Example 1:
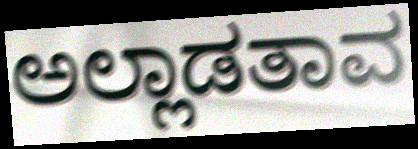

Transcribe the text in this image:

ಅಲ್ಲಾಡತಾವ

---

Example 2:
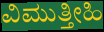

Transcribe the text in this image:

ವಿಮುತ್ತೀಹಿ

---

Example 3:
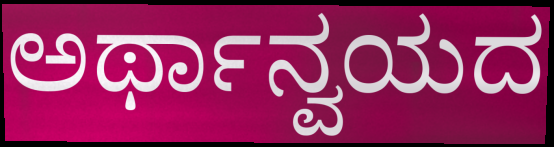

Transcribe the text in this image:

ಅರ್ಥಾನ್ವಯದ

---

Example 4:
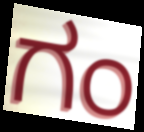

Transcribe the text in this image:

ಗಂ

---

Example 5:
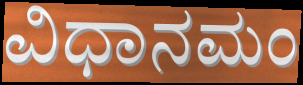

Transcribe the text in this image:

ವಿಧಾನಮಂ